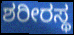
ಶರೀರಸ್ಥ